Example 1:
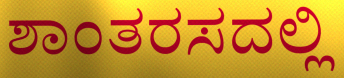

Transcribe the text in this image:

ಶಾಂತರಸದಲ್ಲಿ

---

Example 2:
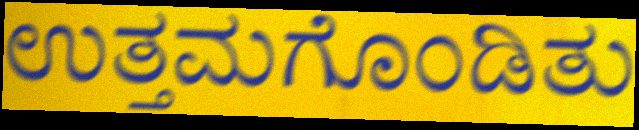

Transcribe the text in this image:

ಉತ್ತಮಗೊಂಡಿತು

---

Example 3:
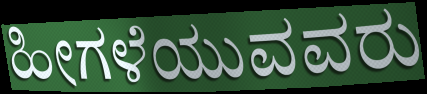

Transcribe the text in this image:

ಹೀಗಳೆಯುವವರು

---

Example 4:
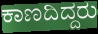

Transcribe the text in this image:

ಕಾಣದಿದ್ದರು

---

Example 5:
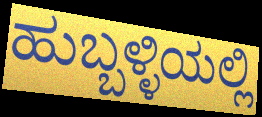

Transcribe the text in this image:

ಹುಬ್ಬಳ್ಳಿಯಲ್ಲಿ